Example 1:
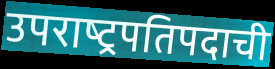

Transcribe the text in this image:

उपराष्ट्रपतिपदाची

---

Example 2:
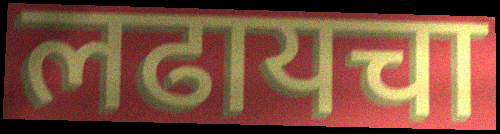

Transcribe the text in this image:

लढायचा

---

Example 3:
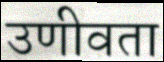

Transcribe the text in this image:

उणीवता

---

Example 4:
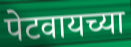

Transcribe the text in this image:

पेटवायच्या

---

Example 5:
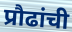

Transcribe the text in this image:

प्रौढांची